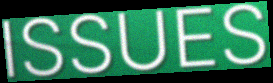
ISSUES